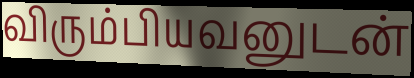
விரும்பியவனுடன்